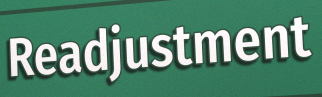
Readjustment